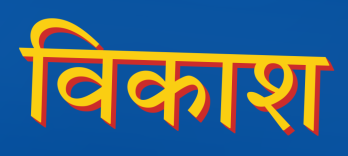
विकाश